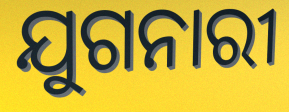
ଯୁଗନାରୀ